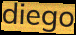
diego